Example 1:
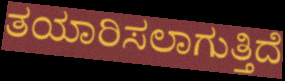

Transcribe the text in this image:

ತಯಾರಿಸಲಾಗುತ್ತಿದೆ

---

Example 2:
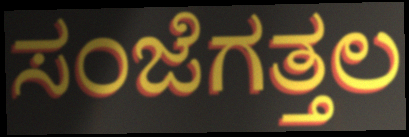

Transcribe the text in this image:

ಸಂಜೆಗತ್ತಲ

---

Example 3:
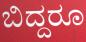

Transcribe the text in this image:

ಬಿದ್ದರೂ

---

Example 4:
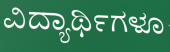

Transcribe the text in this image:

ವಿದ್ಯಾರ್ಥಿಗಳೂ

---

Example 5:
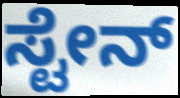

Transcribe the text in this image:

ಸ್ಟೇನ್